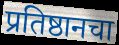
प्रतिष्ठानचा